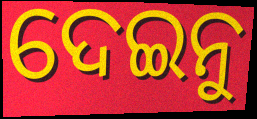
ଦେଇନୁ